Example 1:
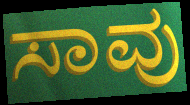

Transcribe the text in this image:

ಸಾವು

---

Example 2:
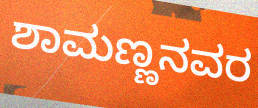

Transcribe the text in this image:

ಶಾಮಣ್ಣನವರ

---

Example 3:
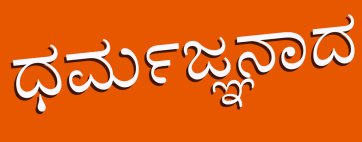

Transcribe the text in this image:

ಧರ್ಮಜ್ಞನಾದ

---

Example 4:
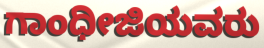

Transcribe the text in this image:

ಗಾಂಧೀಜಿಯವರು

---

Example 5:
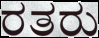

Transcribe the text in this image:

ರತರು